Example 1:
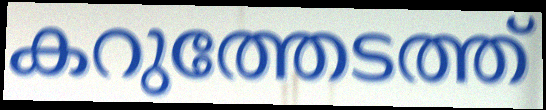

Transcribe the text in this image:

കറുത്തേടത്ത്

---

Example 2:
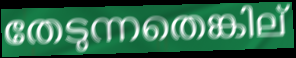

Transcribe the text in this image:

തേടുന്നതെങ്കില്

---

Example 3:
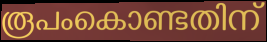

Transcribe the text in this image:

രൂപംകൊണ്ടതിന്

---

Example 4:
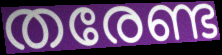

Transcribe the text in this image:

തരേണ്ട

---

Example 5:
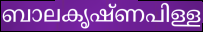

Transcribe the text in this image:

ബാലകൃഷ്ണപിള്ള